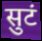
सुटं